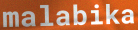
malabika